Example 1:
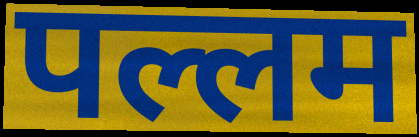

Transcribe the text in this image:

पल्लम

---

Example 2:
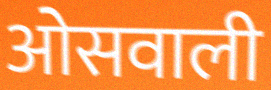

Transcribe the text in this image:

ओसवाली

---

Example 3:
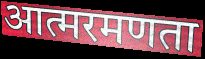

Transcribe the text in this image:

आत्मरमणता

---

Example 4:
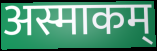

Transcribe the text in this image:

अस्माकम्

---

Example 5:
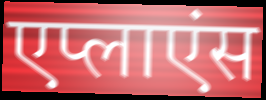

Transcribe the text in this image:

एप्लाएंस